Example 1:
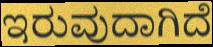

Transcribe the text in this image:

ಇರುವುದಾಗಿದೆ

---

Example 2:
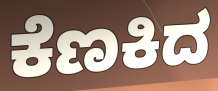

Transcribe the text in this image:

ಕೆಣಕಿದ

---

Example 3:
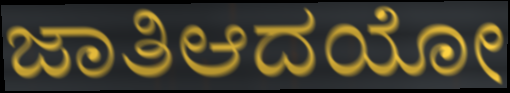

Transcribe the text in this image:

ಜಾತಿಆದಯೋ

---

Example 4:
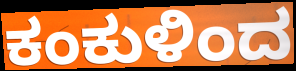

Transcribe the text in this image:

ಕಂಕುಳಿಂದ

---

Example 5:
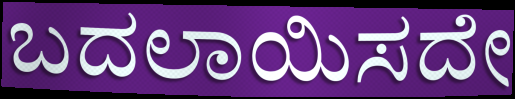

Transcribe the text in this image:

ಬದಲಾಯಿಸದೇ